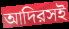
আদিরসই